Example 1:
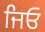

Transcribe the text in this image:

ਜਿਓ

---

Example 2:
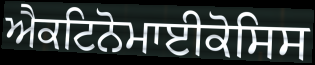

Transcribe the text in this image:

ਐਕਟਿਨੋਮਾਈਕੋਸਿਸ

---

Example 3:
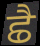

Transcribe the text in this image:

ਛੈ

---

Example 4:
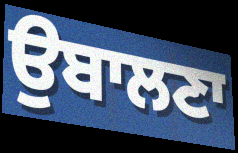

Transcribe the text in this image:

ਉਬਾਲਣਾ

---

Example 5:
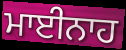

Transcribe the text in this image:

ਮਾਈਨਾਹ